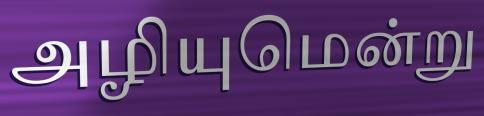
அழியுமென்று